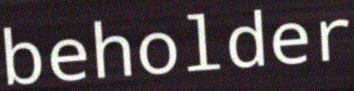
beholder